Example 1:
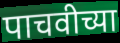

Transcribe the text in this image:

पाचवीच्या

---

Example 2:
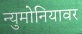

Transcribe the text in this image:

न्युमोनियावर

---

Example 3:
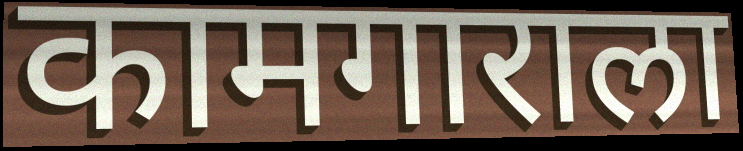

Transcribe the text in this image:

कामगाराला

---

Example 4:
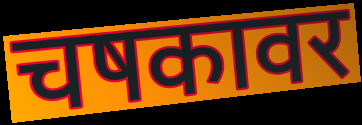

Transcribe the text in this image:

चषकावर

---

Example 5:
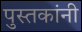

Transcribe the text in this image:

पुस्तकांनी